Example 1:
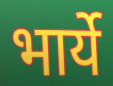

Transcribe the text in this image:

भार्ये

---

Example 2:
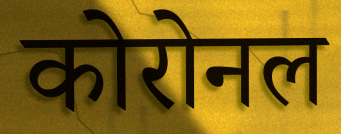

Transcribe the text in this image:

कोरोनल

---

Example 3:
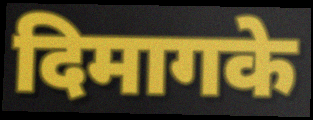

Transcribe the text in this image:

दिमागके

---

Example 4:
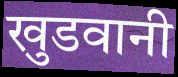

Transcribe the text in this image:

खुडवानी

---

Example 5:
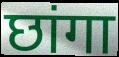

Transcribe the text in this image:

छांगा